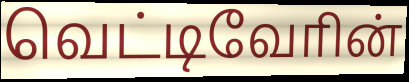
வெட்டிவேரின்